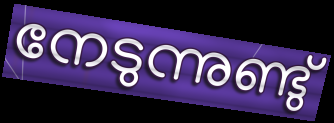
നേടുന്നുണ്ടു്